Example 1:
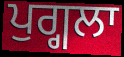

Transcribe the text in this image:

ਪੁਗ੍ਗਲਾ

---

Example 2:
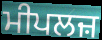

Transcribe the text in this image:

ਮੀਪਲਜ਼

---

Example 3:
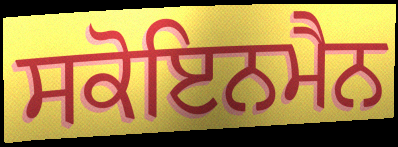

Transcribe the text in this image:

ਸਕੋਇਨਮੈਨ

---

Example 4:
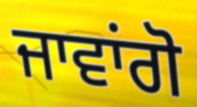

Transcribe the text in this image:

ਜਾਵਾਂਗੋ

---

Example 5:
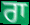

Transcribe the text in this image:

ਰਾ